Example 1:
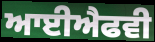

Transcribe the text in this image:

ਆਈਐਫਵੀ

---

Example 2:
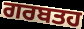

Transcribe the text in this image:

ਗਰਬਤਹ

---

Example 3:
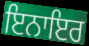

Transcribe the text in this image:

ਇਨਾਇਰ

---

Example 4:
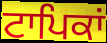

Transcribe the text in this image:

ਟਾਪਿਕਾਂ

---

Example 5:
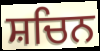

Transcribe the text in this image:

ਸ਼ਚਿਨ